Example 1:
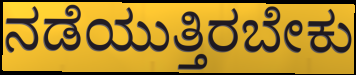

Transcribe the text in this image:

ನಡೆಯುತ್ತಿರಬೇಕು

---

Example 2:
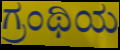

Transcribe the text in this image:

ಗ್ರಂಥಿಯ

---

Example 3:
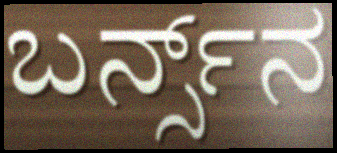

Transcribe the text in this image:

ಬರ್ನ್ಸ್‌ನ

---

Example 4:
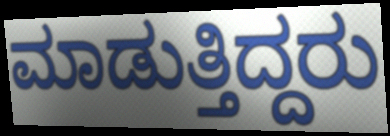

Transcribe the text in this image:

ಮಾಡುತ್ತಿದ್ದರು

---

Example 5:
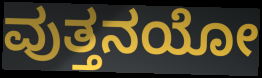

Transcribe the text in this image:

ವುತ್ತನಯೋ